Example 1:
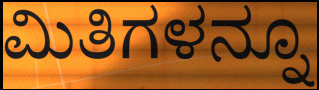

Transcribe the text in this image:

ಮಿತಿಗಳನ್ನೂ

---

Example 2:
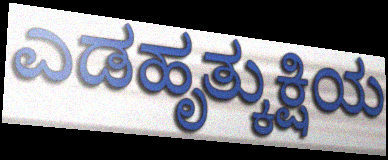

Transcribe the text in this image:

ಎಡಹೃತ್ಕುಕ್ಷಿಯ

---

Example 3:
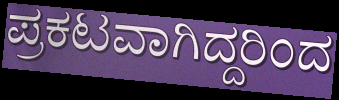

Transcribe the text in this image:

ಪ್ರಕಟವಾಗಿದ್ದರಿಂದ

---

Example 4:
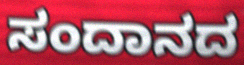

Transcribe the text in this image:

ಸಂದಾನದ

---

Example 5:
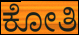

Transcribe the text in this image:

ಕೋತಿ